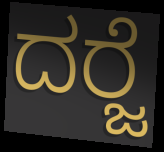
ದರ‍್ಜೆ